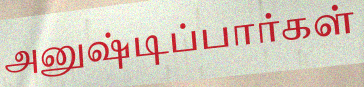
அனுஷ்டிப்பார்கள்